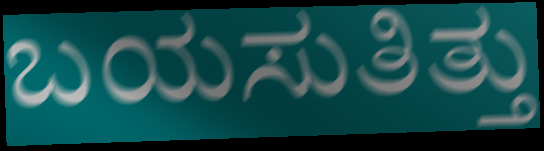
ಬಯಸುತಿತ್ತು